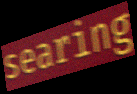
searing